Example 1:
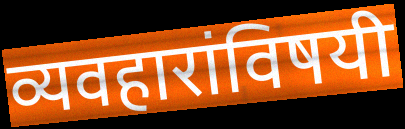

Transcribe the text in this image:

व्यवहारांविषयी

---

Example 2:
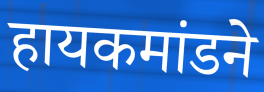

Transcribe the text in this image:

हायकमांडने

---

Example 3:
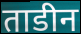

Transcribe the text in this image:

ताडीन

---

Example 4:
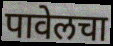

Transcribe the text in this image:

पावेलचा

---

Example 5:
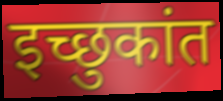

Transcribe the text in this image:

इच्छुकांत